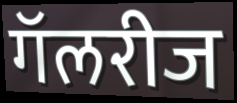
गॅलरीज